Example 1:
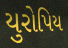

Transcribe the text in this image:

યુરોપિય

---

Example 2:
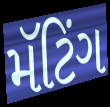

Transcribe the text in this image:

મૅટિંગ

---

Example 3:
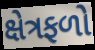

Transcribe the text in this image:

ક્ષેત્રફળો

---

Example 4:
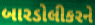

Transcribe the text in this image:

બારડોલીકરને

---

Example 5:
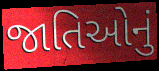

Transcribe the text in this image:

જાતિઓનું